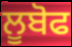
ਲੂਬੋਫ